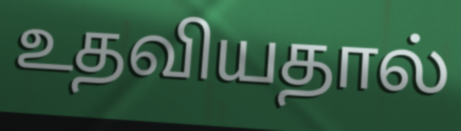
உதவியதால்